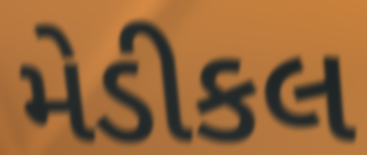
મેડીકલ